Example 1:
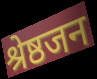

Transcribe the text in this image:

श्रेष्ठजन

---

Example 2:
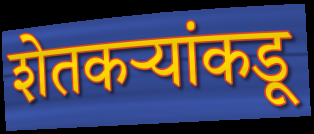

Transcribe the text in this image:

शेतकऱ्यांकडू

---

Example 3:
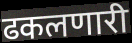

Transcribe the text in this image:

ढकलणारी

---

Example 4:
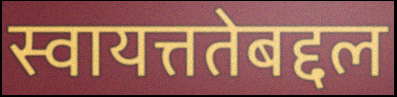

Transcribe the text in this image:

स्वायत्ततेबद्दल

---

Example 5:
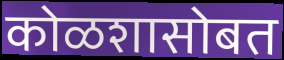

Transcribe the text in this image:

कोळशासोबत